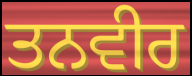
ਤਨਵੀਰ